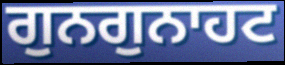
ਗੁਨਗੁਨਾਹਟ